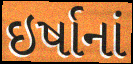
ઇર્ષાનાં